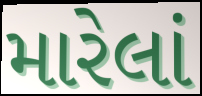
મારેલાં